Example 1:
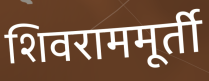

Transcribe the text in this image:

शिवराममूर्ती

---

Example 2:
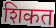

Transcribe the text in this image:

शिकत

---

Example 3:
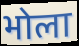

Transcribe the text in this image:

भोला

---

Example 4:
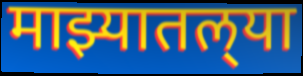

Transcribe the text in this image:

माझ्यातल्या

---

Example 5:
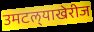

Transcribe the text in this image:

उमटल्याखेरीज